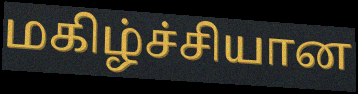
மகிழ்ச்சியான